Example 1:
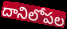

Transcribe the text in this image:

దానిలోపల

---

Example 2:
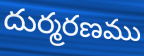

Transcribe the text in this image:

దుర్మరణము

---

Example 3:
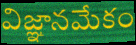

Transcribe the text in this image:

విజ్ఞానమేకం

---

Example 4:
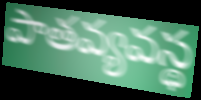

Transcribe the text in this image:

పాతవ్యవస్థ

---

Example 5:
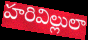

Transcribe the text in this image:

హరివిల్లులా